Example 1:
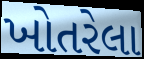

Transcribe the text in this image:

ખોતરેલા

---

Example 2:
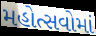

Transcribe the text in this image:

મહોત્સવોમાં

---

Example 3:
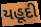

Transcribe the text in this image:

યહૂદી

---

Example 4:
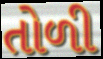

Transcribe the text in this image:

તોળી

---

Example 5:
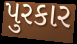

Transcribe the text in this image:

પુરકાર